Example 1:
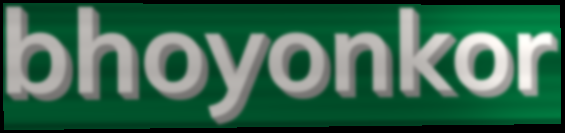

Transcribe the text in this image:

bhoyonkor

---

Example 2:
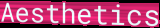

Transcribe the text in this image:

Aesthetics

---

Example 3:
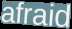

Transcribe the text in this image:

afraid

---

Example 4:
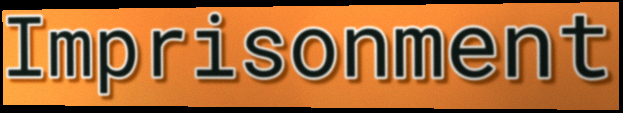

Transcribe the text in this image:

Imprisonment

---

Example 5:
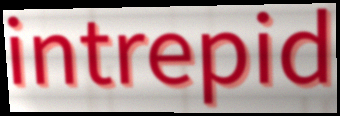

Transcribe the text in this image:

intrepid